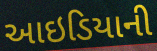
આઇડિયાની